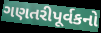
ગણતરીપૂર્વકનો